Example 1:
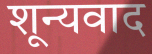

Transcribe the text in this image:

शून्यवाद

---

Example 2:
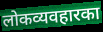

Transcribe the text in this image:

लोकव्यवहारका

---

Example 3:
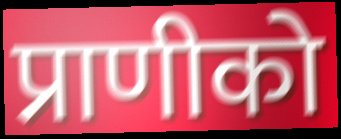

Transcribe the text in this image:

प्राणीको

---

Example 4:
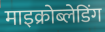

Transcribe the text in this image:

माइक्रोब्लेडिंग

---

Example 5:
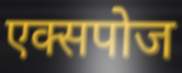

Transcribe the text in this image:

एक्सपोज